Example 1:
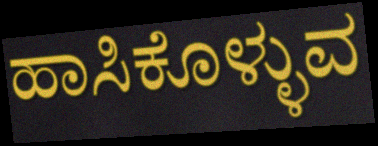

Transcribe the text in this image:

ಹಾಸಿಕೊಳ್ಳುವ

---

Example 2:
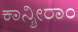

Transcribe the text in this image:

ಕಾನ್ಶೀರಾಂ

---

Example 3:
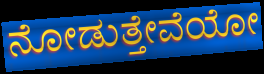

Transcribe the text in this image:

ನೋಡುತ್ತೇವೆಯೋ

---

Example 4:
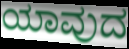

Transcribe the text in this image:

ಯಾವುದ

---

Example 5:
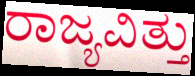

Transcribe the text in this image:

ರಾಜ್ಯವಿತ್ತು